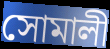
সোমালী